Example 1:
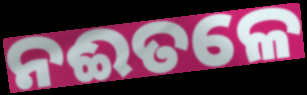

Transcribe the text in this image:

ନଈତଳେ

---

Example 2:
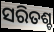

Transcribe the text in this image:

ସରିତଶ୍ଚ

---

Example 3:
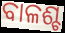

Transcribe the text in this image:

ବାଳଶ୍ଚ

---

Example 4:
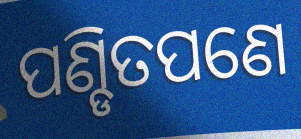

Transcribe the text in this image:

ପଣ୍ଡିତପଣେ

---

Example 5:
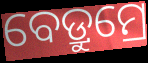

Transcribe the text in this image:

ବେଡ୍ରୁମ୍ରେ